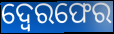
ଦ୍ବେରଫେର